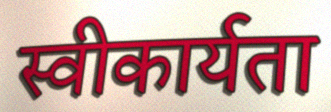
स्वीकार्यता